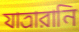
যাত্রারানি